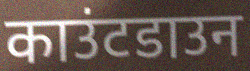
काउंटडाउन